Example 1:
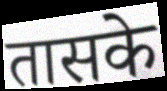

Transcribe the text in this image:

तासके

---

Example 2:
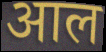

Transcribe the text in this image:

आल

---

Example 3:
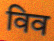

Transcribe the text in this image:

विव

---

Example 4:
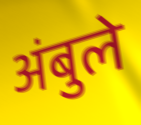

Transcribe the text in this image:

अंबुले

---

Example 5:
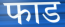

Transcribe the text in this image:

फाड